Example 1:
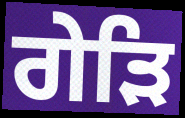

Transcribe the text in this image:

ਗੇੜਿ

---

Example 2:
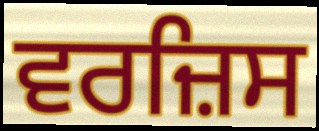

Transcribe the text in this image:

ਵਰਜ਼ਿਸ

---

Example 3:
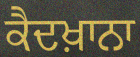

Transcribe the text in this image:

ਕੈਦਖ਼ਾਨਾ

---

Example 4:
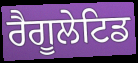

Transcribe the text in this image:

ਰੈਗੂਲੇਟਿਡ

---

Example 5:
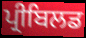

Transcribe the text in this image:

ਪ੍ਰੀਬਿਲਡ